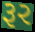
રૂર